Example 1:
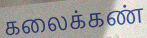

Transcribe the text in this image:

கலைக்கண்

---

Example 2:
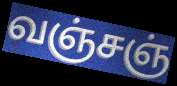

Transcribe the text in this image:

வஞ்சஞ்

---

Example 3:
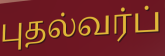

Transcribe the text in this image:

புதல்வர்ப்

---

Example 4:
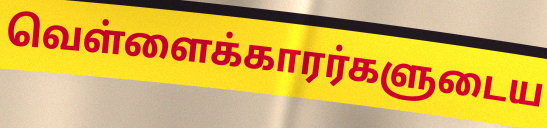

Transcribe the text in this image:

வெள்ளைக்காரர்களுடைய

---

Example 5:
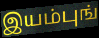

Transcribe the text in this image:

இயம்புங்